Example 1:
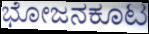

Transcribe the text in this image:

ಭೋಜನಕೂಟ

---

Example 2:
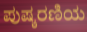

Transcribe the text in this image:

ಪುಷ್ಕರಣಿಯ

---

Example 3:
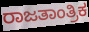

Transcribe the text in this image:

ರಾಜತಾಂತ್ರಿಕ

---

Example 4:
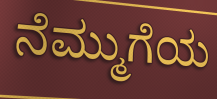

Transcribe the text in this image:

ನೆಮ್ಮುಗೆಯ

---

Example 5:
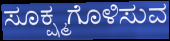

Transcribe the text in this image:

ಸೂಕ್ಷ್ಮಗೊಳಿಸುವ